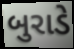
બુરાડે